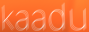
kaadu